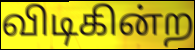
விடிகின்ற